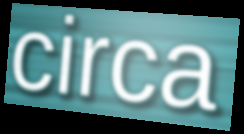
circa